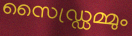
സൈഡ്ഡ്രമ്മും